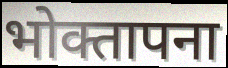
भोक्तापना